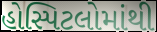
હોસ્પિટલોમાંથી